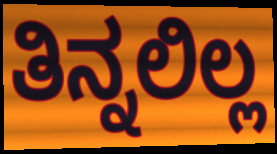
ತಿನ್ನಲಿಲ್ಲ